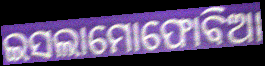
ଇସଲାମୋଫୋବିଆ